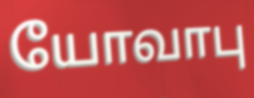
யோவாபு